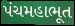
પંચમહાભૂત